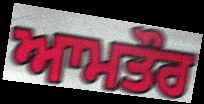
ਆਮਤੌਰ